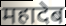
महादेब